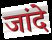
जांदे